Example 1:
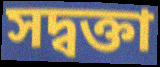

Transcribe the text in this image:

সদ্বক্তা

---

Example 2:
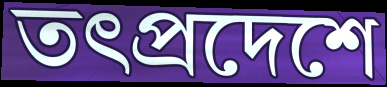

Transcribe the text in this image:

তৎপ্রদেশে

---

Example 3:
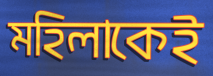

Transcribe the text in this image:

মহিলাকেই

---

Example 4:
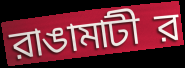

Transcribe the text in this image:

রাঙামাটীর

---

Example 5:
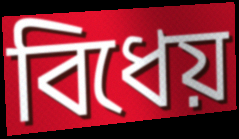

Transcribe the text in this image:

বিধেয়